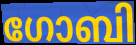
ഗോബി